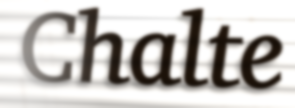
Chalte